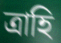
ত্রাহি